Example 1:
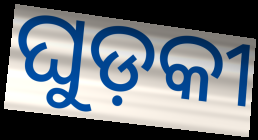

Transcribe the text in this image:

ଘୁଡ଼କୀ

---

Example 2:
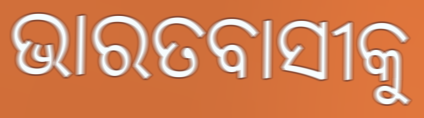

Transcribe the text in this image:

ଭାରତବାସୀକୁ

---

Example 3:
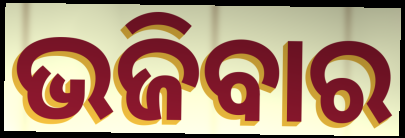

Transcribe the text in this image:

ଭଜିବାର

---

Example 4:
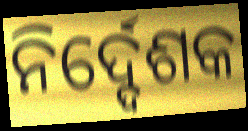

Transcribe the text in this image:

ନିର୍ଦ୍ଦେଶକ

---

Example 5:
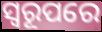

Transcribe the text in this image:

ସ୍ଵରୂପରେ